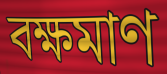
বক্ষমাণ